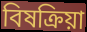
বিষক্রিয়া